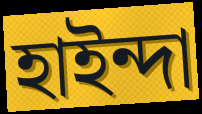
হাইন্দা